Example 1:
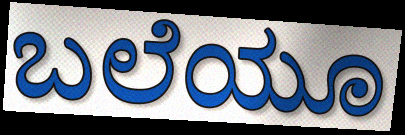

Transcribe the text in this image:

ಬಲೆಯೂ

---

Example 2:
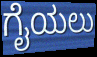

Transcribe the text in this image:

ಗೈಯಲು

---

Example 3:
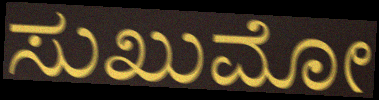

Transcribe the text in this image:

ಸುಖುಮೋ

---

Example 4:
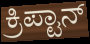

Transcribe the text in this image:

ಕ್ರಿಪ್ಟಾನ್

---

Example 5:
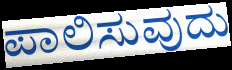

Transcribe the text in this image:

ಪಾಲಿಸುವುದು